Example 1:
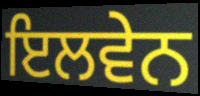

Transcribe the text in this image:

ਇਲਵੇਨ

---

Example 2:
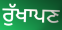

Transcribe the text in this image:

ਰੁੱਖਾਪਣ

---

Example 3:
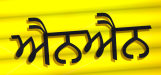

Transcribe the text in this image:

ਐਨਐਨ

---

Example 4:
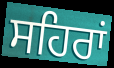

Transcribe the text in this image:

ਸਹਿਰਾਂ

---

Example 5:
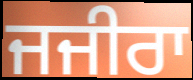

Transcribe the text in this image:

ਜਜੀਰਾ